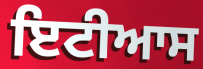
ਇਟੀਆਸ